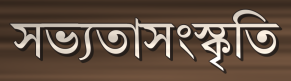
সভ্যতাসংস্কৃতি